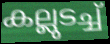
കല്ലുടച്ച്